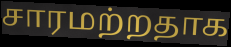
சாரமற்றதாக